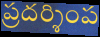
ప్రదర్శింప